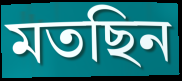
মতছিন